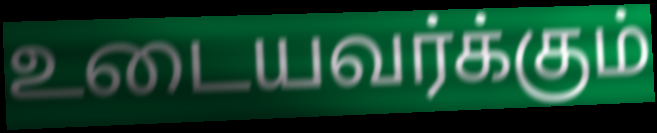
உடையவர்க்கும்